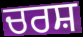
ਚਰਸ਼